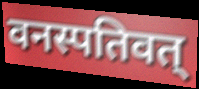
वनस्पतिवत्